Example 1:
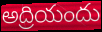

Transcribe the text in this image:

అద్రియందు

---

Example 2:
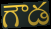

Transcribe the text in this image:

గౌడ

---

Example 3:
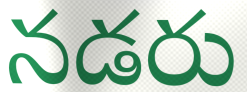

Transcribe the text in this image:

నడరు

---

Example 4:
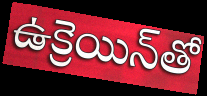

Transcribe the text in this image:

ఉక్రెయిన్‌తో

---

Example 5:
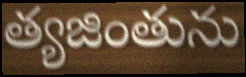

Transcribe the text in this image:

త్యజింతును